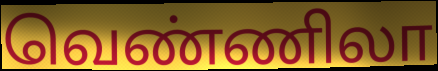
வெண்ணிலா